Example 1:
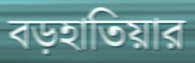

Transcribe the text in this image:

বড়হাতিয়ার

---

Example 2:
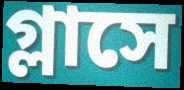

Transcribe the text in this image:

গ্লাসে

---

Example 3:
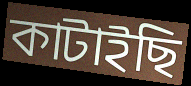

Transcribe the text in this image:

কাটাইছি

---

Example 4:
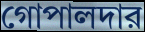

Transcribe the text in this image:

গোপালদার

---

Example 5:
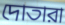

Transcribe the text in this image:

দোতারা